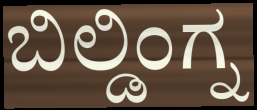
ಬಿಲ್ಡಿಂಗ್ನ